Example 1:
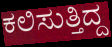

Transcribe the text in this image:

ಕಲಿಸುತ್ತಿದ್ದ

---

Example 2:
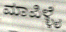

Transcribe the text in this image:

ಮಾಪಿಳ್ಳೈ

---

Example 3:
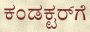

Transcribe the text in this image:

ಕಂಡಕ್ಟರ್‌ಗೆ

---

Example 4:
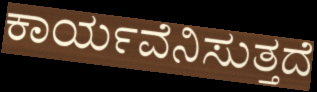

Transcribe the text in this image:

ಕಾರ್ಯವೆನಿಸುತ್ತದೆ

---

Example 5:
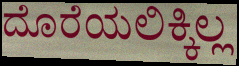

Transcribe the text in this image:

ದೊರೆಯಲಿಕ್ಕಿಲ್ಲ